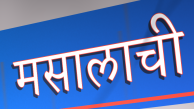
मसालाची